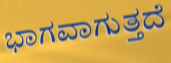
ಭಾಗವಾಗುತ್ತದೆ